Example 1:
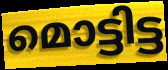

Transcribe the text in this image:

മൊട്ടിട്ട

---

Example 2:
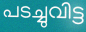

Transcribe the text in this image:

പടച്ചുവിട്ട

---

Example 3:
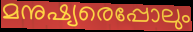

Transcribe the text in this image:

മനുഷ്യരെപ്പോലും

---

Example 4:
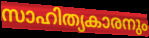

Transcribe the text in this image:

സാഹിത്യകാരനും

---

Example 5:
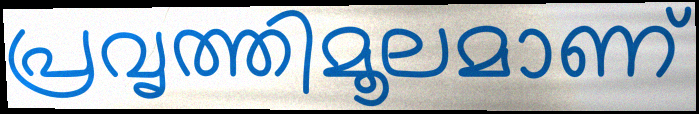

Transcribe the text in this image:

പ്രവൃത്തിമൂലമാണ്